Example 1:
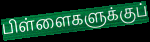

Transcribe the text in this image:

பிள்ளைகளுக்குப்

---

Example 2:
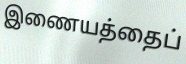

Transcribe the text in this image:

இணையத்தைப்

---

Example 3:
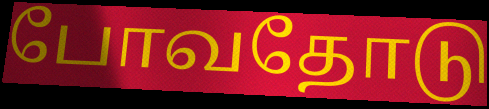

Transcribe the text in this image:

போவதோடு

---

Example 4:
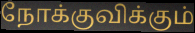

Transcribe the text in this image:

நோக்குவிக்கும்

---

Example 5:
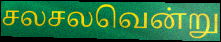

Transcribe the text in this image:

சலசலவென்று